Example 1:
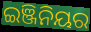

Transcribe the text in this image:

ଇଞ୍ଜିନିୟର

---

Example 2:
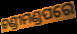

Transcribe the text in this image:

ଚଣ୍ଡୀମଣ୍ଡପରେ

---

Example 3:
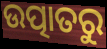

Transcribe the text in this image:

ଉତ୍ପାତରୁ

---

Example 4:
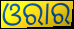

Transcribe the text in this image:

ଓରାର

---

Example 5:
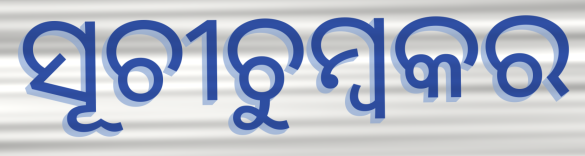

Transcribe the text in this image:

ସୂଚୀଚୁମ୍ବକର